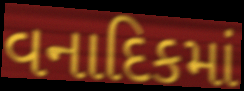
વનાદિકમાં